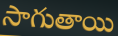
సాగుతాయి